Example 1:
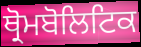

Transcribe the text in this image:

ਥ੍ਰੋਮਬੋਲਿਟਿਕ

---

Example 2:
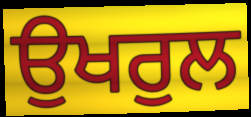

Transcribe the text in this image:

ਉਖਰੁਲ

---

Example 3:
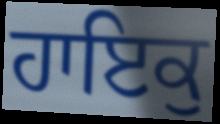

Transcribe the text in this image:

ਹਾਇਕੁ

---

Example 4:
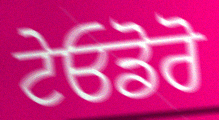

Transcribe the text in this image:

ਟੇਓਡੋਰੋ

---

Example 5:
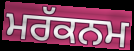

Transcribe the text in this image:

ਮਰੱਕਨਮ